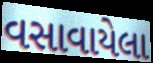
વસાવાયેલા